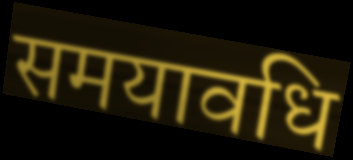
समयावधि